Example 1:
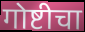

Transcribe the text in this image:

गोष्टीचा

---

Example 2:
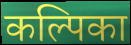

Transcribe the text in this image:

कल्पिका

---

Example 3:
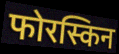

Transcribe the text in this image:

फोरस्किन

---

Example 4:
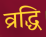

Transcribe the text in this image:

व्रद्धि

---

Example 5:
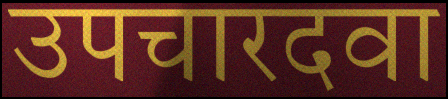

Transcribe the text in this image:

उपचारदवा